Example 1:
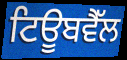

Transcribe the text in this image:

ਟਿਊਬਵੈੱਲ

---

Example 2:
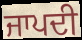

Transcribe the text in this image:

ਜਾਪਦੀ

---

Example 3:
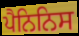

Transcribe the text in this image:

ਪੈਨਿਨਿਸ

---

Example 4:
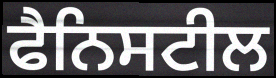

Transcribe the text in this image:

ਫੈਨਿਸਟੀਲ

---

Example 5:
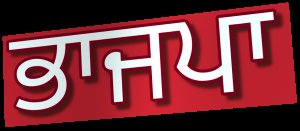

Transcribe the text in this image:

ਭਾਜਪਾ